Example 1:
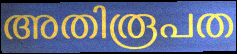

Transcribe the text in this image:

അതിരൂപത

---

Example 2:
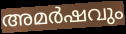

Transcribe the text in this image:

അമർഷവും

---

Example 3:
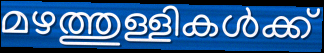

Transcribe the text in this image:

മഴത്തുള്ളികൾക്ക്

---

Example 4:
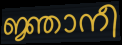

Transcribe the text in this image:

ജ്ഞാനീ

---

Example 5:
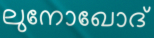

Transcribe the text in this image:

ലുനോഖോദ്